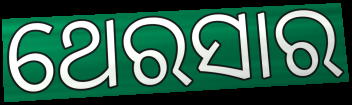
ଥେରସାର